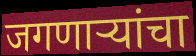
जगणाऱ्यांचा